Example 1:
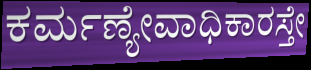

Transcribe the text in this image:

ಕರ್ಮಣ್ಯೇವಾಧಿಕಾರಸ್ತೇ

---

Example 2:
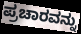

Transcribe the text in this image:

ಪ್ರಚಾರವನ್ನು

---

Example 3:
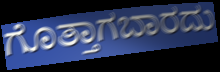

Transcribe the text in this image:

ಗೊತ್ತಾಗಬಾರದು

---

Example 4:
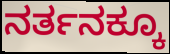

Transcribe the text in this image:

ನರ್ತನಕ್ಕೂ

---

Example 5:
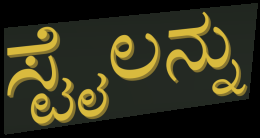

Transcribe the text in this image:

ಸ್ಟೈಲನ್ನು